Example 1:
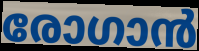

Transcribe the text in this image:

രോഗാൻ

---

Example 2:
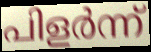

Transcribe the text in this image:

പിളർന്ന്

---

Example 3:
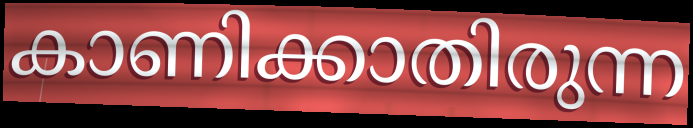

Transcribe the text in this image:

കാണിക്കാതിരുന്ന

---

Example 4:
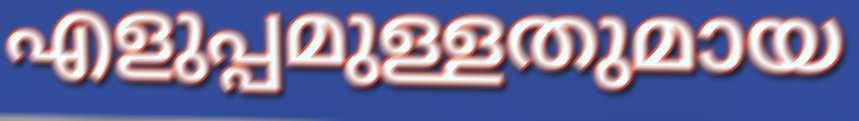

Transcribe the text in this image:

എളുപ്പമുള്ളതുമായ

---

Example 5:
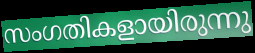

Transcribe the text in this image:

സംഗതികളായിരുന്നു